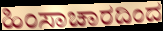
ಹಿಂಸಾಚಾರದಿಂದ